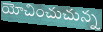
యోచించుచున్న